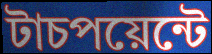
টাচপয়েন্টে